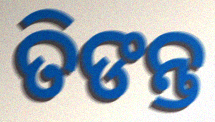
ତିଙନ୍ତ